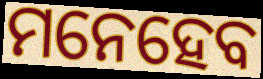
ମନେହେବ